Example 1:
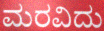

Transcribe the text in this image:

ಮರವಿದು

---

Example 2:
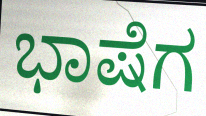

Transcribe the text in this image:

ಭಾಷೆಗ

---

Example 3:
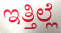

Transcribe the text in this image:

ಇತ್ತಿಲ್ಲೆ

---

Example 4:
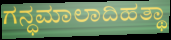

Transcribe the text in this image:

ಗನ್ಧಮಾಲಾದಿಹತ್ಥಾ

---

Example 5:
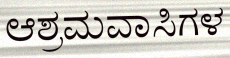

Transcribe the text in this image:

ಆಶ್ರಮವಾಸಿಗಳ